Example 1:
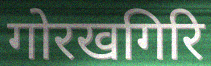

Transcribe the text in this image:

गोरखगिरि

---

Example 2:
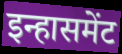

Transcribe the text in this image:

इन्हासमेंट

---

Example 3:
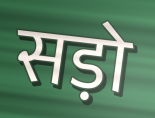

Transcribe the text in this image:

सड़ो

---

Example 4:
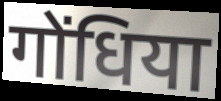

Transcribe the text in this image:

गोंधिया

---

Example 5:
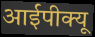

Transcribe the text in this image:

आईपीक्यू